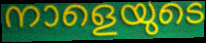
നാളെയുടെ